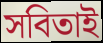
সবিতাই